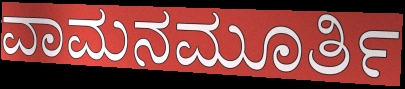
ವಾಮನಮೂರ್ತಿ